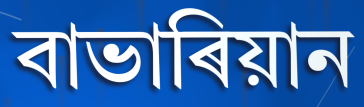
বাভাৰিয়ান